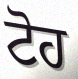
ਟੋਹ